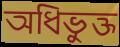
অধিভুক্ত